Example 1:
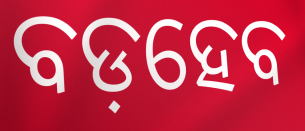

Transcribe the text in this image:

ବଡ଼ହେବ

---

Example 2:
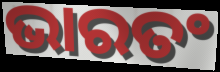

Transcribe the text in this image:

ଭାରତଂ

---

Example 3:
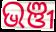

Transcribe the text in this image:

ଭଞ୍ଜ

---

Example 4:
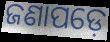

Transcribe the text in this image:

ଜଣାପଡ଼େ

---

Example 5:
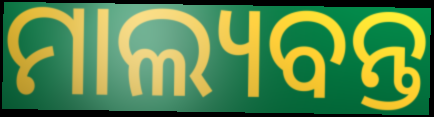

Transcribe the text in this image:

ମାଲ୍ୟବନ୍ତ